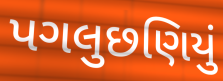
પગલુછણિયું